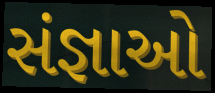
સંજ્ઞાઓ